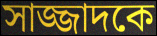
সাজ্জাদকে